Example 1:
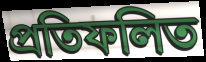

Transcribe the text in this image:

প্ৰতিফলিত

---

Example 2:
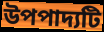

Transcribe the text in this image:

উপপাদ্যটি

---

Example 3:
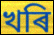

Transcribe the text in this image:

খৰি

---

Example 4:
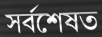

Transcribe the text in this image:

সৰ্বশেষত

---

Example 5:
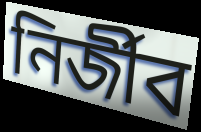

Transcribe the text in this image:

নিৰ্জীব